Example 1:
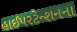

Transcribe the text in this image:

હાઈપરટેન્શનના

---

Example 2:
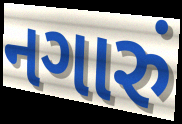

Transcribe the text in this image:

નગારું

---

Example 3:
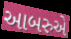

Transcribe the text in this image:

આબરુએ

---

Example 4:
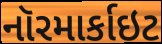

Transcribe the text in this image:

નૉરમાર્કાઇટ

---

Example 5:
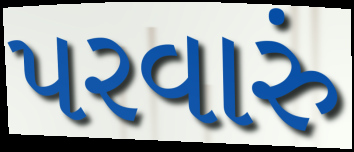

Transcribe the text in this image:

પરવારું